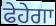
ਫੇਹੇਗਾ